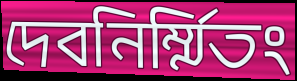
দেবনির্ম্মিতং